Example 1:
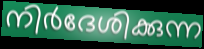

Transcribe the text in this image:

നിർദേശിക്കുന്ന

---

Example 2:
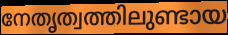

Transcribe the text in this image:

നേതൃത്വത്തിലുണ്ടായ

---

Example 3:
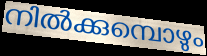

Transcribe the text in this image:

നിൽക്കുമ്പൊഴും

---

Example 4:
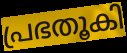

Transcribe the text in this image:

പ്രഭതൂകി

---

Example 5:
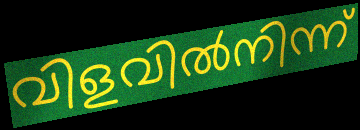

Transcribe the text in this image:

വിളവിൽനിന്ന്